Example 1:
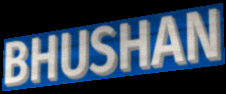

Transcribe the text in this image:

BHUSHAN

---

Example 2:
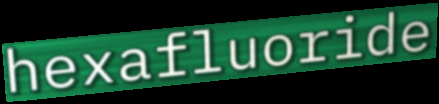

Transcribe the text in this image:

hexafluoride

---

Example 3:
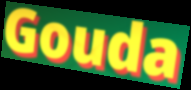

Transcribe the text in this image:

Gouda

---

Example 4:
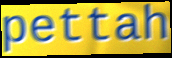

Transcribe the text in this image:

pettah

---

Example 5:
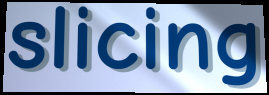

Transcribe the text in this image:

slicing